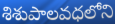
శిశుపాలవధలోని